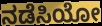
ನಡೆಸಿಯೋ